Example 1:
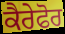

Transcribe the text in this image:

ਕੈਰੇਫੋਰ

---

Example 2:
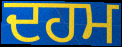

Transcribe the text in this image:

ਦਹਮ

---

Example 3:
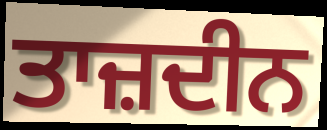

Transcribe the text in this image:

ਤਾਜ਼ਦੀਨ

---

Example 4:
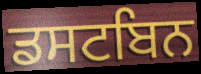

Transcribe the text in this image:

ਡਸਟਬਿਨ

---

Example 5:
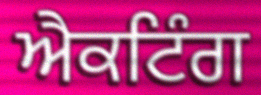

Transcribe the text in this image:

ਐਕਟਿੰਗ